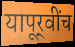
यापूर्वींच